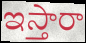
ఇస్తారా